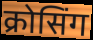
क्रोसिंग